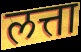
लत्ता